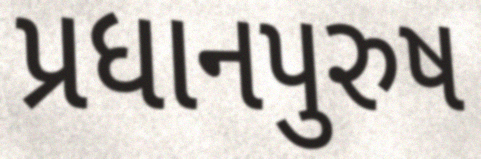
પ્રધાનપુરુષ